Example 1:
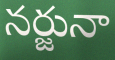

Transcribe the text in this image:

నర్జునా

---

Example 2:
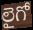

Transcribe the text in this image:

లైగో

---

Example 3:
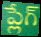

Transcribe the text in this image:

ప్లేగ్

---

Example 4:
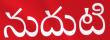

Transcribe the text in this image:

నుదుటి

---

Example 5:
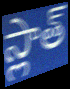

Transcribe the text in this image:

స్లాత్